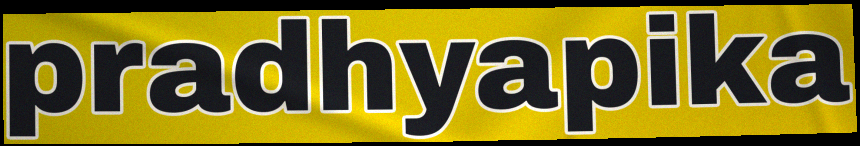
pradhyapika